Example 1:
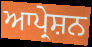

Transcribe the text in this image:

ਆਪ੍ਰੇਸ਼ਨ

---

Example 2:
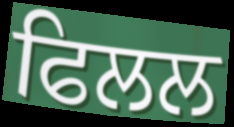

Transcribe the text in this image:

ਫਿਲਲ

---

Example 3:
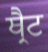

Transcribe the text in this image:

ਥ੍ਰੈਟ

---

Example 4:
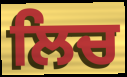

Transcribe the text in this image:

ਲਿਚ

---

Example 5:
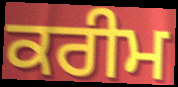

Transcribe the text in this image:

ਕਰੀਮ